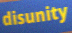
disunity